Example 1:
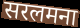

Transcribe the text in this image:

सरलमना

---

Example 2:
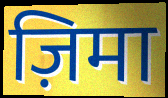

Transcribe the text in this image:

ज़िमा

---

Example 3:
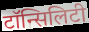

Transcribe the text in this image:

टॉन्सिलिटी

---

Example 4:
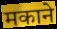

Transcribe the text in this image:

मकाने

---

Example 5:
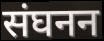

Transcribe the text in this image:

संघनन